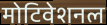
मोटिवेशनल